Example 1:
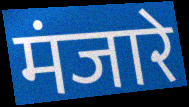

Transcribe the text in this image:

मंजारे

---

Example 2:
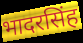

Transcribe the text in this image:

भादरसिंह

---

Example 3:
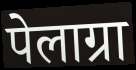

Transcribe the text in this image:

पेलाग्रा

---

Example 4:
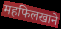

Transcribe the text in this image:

महफिलखाने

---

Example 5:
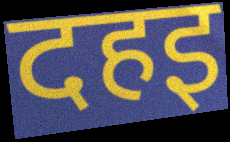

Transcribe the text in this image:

दहइ